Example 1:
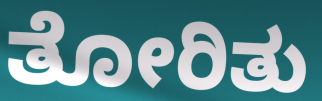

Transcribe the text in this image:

ತೋರಿತು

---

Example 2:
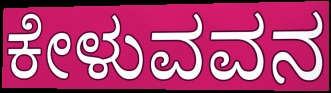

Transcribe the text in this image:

ಕೇಳುವವನ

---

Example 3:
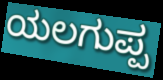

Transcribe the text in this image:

ಯಲಗುಪ್ಪ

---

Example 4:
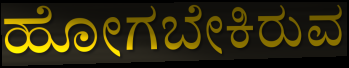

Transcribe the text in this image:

ಹೋಗಬೇಕಿರುವ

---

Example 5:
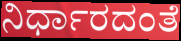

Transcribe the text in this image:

ನಿರ್ಧಾರದಂತೆ